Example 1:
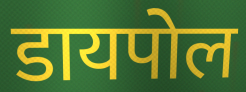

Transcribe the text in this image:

डायपोल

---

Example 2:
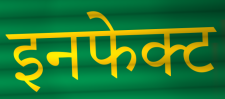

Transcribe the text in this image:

इनफेक्ट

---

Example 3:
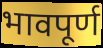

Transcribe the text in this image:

भावपूर्ण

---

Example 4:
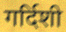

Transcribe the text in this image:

गर्दिशी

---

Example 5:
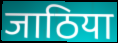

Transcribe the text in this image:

जाठिया